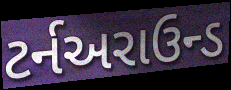
ટર્નઅરાઉન્ડ